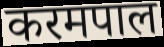
करमपाल